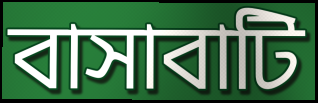
বাসাবাটি